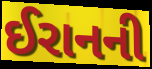
ઈરાનની